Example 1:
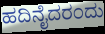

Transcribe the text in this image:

ಹದಿನೈದರಂದು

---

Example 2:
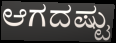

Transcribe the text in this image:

ಆಗದಷ್ಟು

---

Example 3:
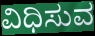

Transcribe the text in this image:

ವಿಧಿಸುವ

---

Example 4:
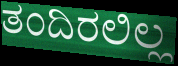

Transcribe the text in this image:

ತಂದಿರಲಿಲ್ಲ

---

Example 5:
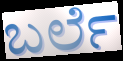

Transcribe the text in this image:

ಬರ್ಲೆ